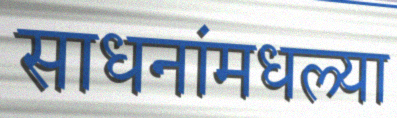
साधनांमधल्या